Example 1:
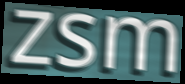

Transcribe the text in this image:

zsm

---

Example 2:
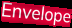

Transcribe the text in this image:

Envelope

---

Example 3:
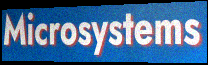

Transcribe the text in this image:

Microsystems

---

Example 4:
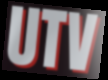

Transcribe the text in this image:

UTV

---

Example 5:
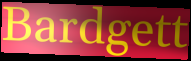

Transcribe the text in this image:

Bardgett